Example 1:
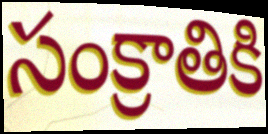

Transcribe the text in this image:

సంక్రాతికి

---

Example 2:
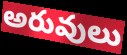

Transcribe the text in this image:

అరువులు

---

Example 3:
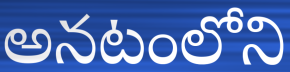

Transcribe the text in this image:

అనటంలోని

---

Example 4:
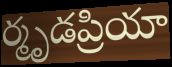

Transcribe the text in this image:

ర్మృడప్రియా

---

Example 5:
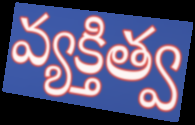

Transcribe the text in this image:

వ్యక్తిత్వ